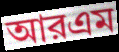
আরএম